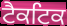
ਟੈਕਟਿਕ